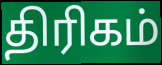
திரிகம்